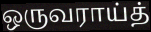
ஒருவராய்த்